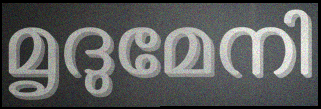
മൃദുമേനി